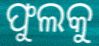
ଫୁଲକୁ